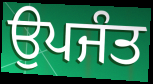
ਉਪਜੰਤ